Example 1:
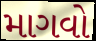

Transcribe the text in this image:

માગવો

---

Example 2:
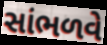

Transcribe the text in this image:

સાંભળવે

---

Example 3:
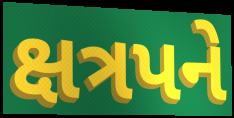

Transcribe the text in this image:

ક્ષત્રપને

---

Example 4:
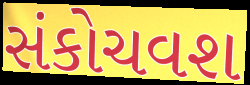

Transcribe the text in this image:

સંકોચવશ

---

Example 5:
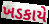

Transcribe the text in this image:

ખડકાયે